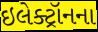
ઇલેક્ટ્રૉનના